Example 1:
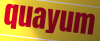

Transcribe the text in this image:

quayum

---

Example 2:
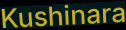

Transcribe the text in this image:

Kushinara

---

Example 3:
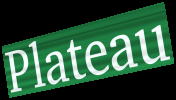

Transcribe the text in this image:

Plateau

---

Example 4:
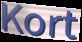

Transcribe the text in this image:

Kort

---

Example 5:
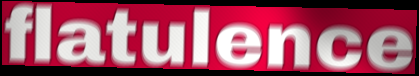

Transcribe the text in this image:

flatulence